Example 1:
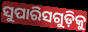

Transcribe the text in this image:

ସୁପାରିସଗୁଡ଼ିକୁ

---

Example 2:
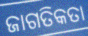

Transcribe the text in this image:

ଜାଗତିକତା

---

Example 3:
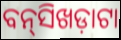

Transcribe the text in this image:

ବନ୍‌ସିଖଡ଼ାଟା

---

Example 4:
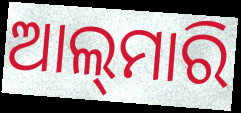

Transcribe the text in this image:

ଆଲ୍‌ମାରି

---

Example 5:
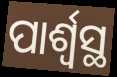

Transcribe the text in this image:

ପାର୍ଶ୍ବସ୍ଥ